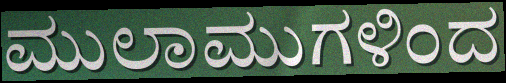
ಮುಲಾಮುಗಳಿಂದ